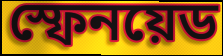
স্ফেনয়েড